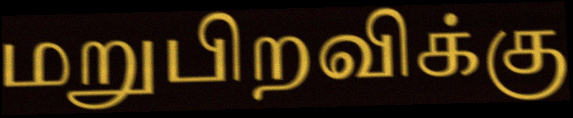
மறுபிறவிக்கு